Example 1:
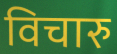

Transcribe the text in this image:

विचारु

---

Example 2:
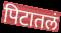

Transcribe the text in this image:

पिटातलं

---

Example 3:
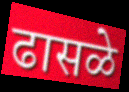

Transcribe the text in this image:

ढासळे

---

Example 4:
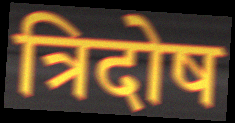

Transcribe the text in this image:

त्रिदोष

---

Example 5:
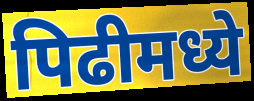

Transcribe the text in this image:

पिढीमध्ये